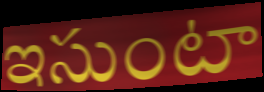
ఇసుంటా